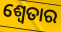
ଶ୍ୱେତାର